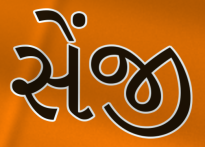
સેંજી